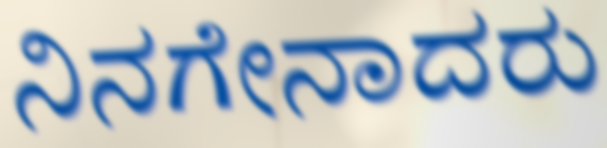
ನಿನಗೇನಾದರು